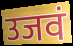
उजवं